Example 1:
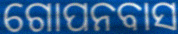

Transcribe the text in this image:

ଗୋପନବାସ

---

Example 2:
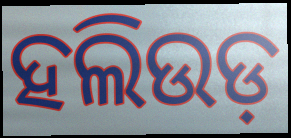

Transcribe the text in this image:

ହଲିଉଡ଼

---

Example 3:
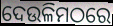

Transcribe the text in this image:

ଦେଉଳିମଠରେ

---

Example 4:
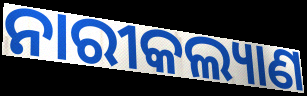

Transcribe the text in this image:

ନାରୀକଲ୍ୟାଣ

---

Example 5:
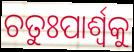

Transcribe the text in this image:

ଚତୁଃପାର୍ଶ୍ୱକୁ